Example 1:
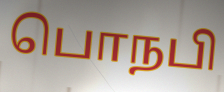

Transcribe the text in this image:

பொநபி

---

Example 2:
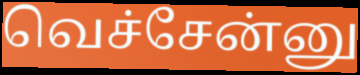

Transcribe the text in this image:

வெச்சேன்னு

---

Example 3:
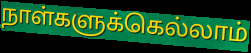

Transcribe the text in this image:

நாள்களுக்கெல்லாம்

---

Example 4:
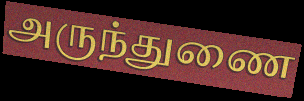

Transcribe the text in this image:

அருந்துணை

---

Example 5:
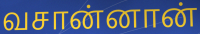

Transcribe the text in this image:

வசான்னான்